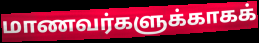
மாணவர்களுக்காகக்